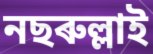
নছৰুল্লাই